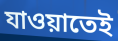
যাওয়াতেই